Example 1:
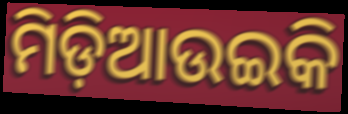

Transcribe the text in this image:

ମିଡ଼ିଆଉଇକି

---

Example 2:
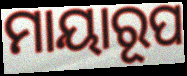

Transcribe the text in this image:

ମାୟାରୂପ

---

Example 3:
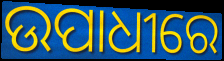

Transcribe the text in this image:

ଉପାଧୀରେ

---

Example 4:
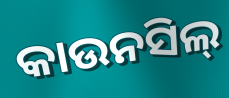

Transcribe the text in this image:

କାଉନସିଲ୍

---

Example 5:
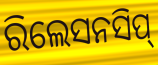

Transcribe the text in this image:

ରିଲେସନସିପ୍